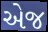
એજ